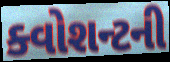
ક્વોશન્ટની